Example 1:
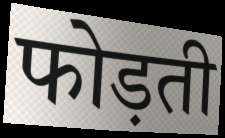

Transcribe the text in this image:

फोड़ती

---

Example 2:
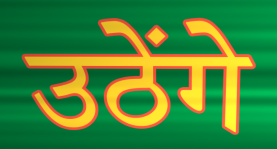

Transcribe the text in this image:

उठेंगे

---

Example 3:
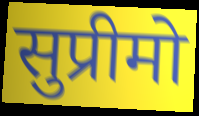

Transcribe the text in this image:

सुप्रीमो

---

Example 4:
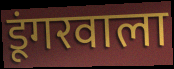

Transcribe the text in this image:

डूंगरवाला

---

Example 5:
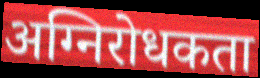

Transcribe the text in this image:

अग्निरोधकता